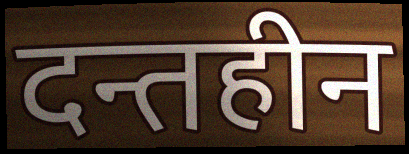
दन्तहीन